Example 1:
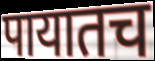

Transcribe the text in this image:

पायातच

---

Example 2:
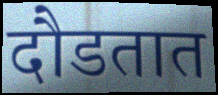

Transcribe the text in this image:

दौडतात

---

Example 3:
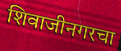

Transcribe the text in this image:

शिवाजीनगरचा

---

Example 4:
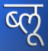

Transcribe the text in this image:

ब्लू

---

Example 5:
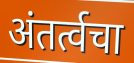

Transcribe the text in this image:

अंतर्त्वचा